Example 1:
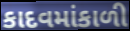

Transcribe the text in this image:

કાદવમાંકાળી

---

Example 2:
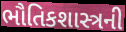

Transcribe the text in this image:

ભૌતિકશાસ્ત્રની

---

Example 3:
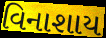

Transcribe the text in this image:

વિનાશાય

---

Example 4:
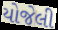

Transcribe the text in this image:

યોજેલી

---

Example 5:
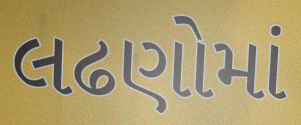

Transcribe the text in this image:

લઢણોમાં